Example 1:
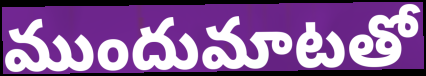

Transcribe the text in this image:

ముందుమాటతో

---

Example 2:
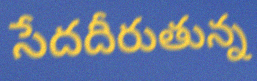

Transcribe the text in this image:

సేదదీరుతున్న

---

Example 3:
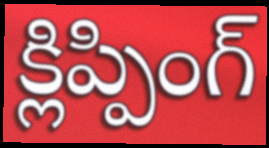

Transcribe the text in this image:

క్లిప్పింగ్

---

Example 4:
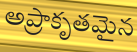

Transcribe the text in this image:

అప్రాకృతమైన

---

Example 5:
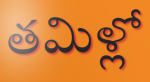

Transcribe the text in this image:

తమిళ్లో